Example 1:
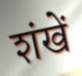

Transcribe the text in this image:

शंखें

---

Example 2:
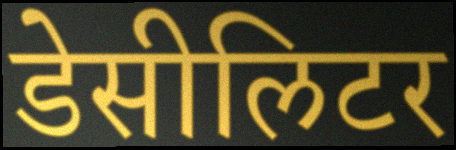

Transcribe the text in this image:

डेसीलिटर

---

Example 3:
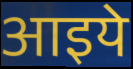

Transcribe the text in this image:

आइये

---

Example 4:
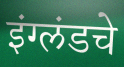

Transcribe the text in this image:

इंग्लंडचे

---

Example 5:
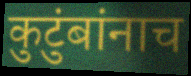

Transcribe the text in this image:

कुटुंबांनाच